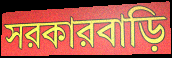
সরকারবাড়ি